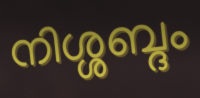
നിശ്ശബ്ദം